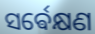
ସର୍ଵେକ୍ଷଣ